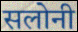
सलोनी